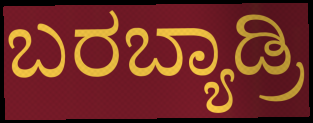
ಬರಬ್ಯಾಡ್ರಿ